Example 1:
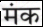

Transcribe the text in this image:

मंक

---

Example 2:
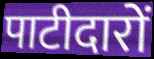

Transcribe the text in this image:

पाटीदारों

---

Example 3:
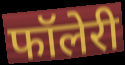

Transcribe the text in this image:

फॉलेरी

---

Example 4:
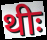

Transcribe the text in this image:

थीः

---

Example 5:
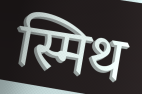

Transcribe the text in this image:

स्मिथ